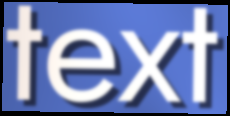
text